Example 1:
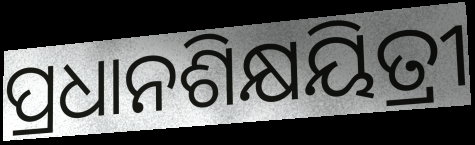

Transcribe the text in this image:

ପ୍ରଧାନଶିକ୍ଷୟିତ୍ରୀ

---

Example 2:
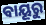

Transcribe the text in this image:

ବାୟୂରୁ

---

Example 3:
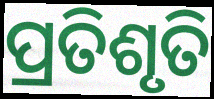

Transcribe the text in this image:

ପ୍ରତିଶୃତି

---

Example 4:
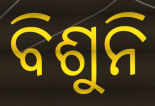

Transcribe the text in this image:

ବିଶୁନି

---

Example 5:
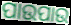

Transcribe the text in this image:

ପାଉପାଉ